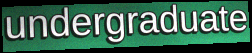
undergraduate